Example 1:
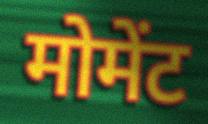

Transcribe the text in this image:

मोमेंट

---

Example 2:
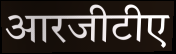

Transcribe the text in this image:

आरजीटीए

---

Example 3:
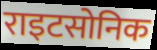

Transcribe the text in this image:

राइटसोनिक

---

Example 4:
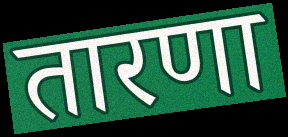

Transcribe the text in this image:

तारणा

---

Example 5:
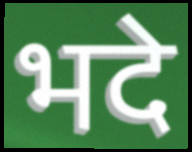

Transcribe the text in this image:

भदे